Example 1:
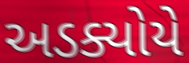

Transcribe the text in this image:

અડક્યોયે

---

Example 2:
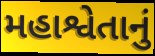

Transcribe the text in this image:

મહાશ્વેતાનું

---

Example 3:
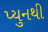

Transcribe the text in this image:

પ્યુનથી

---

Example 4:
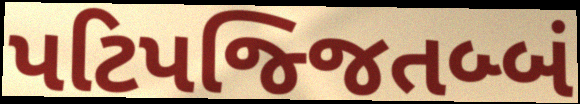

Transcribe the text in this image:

પટિપજ્જિતબ્બં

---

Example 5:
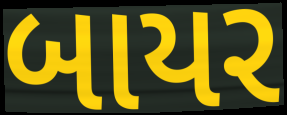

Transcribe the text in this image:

બાયર